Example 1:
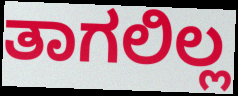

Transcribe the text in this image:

ತಾಗಲಿಲ್ಲ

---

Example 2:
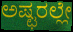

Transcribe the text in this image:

ಅಷ್ಟರಲ್ಲೇ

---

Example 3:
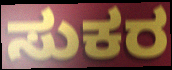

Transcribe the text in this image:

ಸುಕರ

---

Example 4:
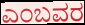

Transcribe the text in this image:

ಎಂಬವರ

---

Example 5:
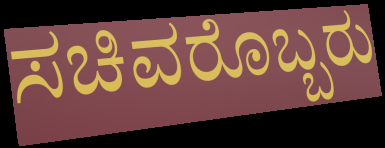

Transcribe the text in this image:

ಸಚಿವರೊಬ್ಬರು